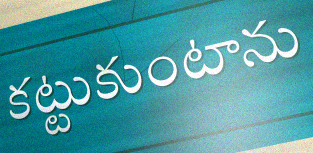
కట్టుకుంటాను